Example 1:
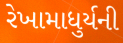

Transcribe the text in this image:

રેખામાધુર્યની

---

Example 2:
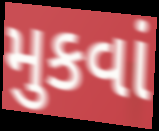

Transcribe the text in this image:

મુકવાં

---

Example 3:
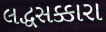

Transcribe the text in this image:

લદ્ધસક્કારા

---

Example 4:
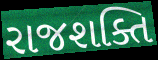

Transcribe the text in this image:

રાજશક્તિ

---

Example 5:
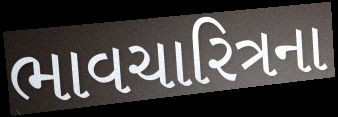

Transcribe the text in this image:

ભાવચારિત્રના